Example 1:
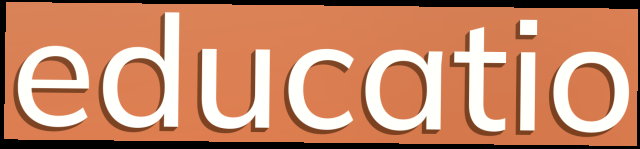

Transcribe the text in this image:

educatio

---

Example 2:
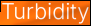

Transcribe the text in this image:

Turbidity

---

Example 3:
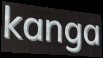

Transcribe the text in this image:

kanga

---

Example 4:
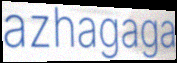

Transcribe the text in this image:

azhagaga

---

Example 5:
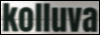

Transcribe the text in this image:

kolluva